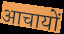
आचायों